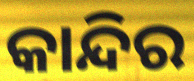
କାନ୍ଦିର